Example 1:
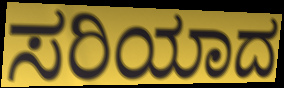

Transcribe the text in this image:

ಸರಿಯಾದ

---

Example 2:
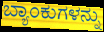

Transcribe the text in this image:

ಬ್ಯಾಂಕುಗಳನ್ನು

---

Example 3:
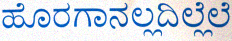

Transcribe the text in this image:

ಹೊರಗಾನಲ್ಲದಿಲ್ಲೆಲೆ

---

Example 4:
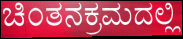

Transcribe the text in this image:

ಚಿಂತನಕ್ರಮದಲ್ಲಿ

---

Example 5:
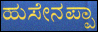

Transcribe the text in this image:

ಹುಸೇನಪ್ಪಾ